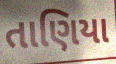
તાણિયા